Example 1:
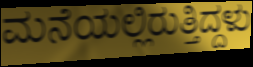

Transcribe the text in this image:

ಮನೆಯಲ್ಲಿರುತ್ತಿದ್ದಳು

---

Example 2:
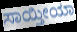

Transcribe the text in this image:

ಸಾಯ್ತೀಯಾ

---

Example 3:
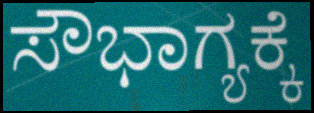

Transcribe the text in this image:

ಸೌಭಾಗ್ಯಕ್ಕೆ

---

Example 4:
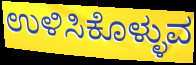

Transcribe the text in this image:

ಉಳಿಸಿಕೊಳ್ಳುವ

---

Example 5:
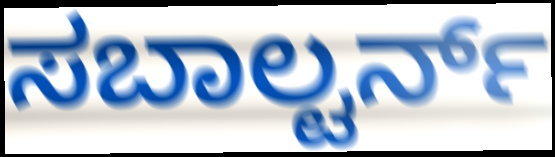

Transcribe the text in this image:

ಸಬಾಲ್ಟರ್ನ್